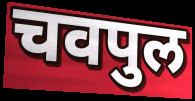
चवपुल